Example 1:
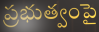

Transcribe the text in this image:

ప్రభుత్వంపై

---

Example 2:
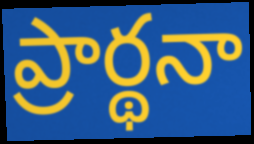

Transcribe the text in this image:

ప్రార్థనా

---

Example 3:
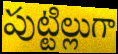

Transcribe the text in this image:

పుట్టిల్లుగా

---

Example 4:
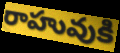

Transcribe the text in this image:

రాహువుకి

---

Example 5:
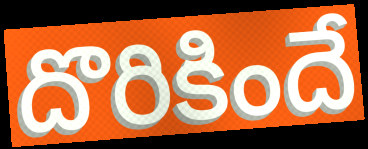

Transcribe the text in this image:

దొరికిందే